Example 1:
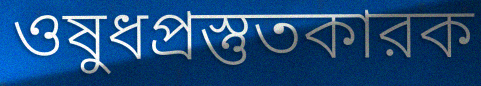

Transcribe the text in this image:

ওষুধপ্রস্তুতকারক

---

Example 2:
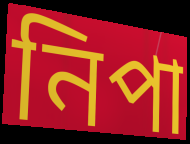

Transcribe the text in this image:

নিপা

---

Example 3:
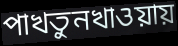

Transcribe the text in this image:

পাখতুনখাওয়ায়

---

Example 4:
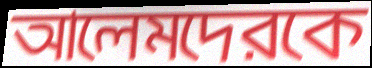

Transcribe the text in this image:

আলেমদেরকে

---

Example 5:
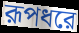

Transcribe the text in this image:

রূপধরে